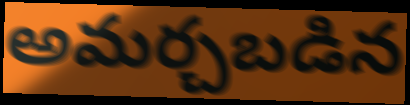
అమర్చబడిన